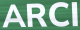
ARCI